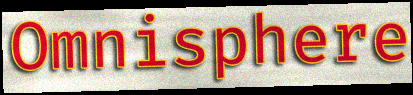
Omnisphere